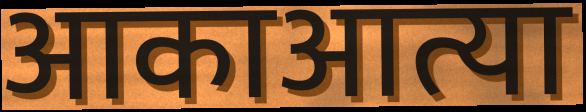
आकाआत्या